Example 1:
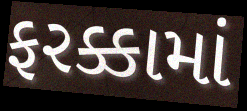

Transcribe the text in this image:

ફરક્કામાં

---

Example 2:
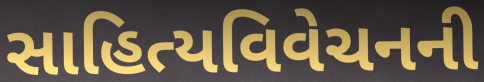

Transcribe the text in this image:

સાહિત્યવિવેચનની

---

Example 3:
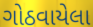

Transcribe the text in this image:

ગોઠવાયેલા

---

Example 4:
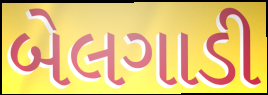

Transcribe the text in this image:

બેલગાડી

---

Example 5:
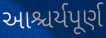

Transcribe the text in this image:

આશ્ચર્યપૂર્ણ